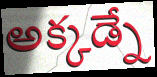
అక్కడ్నే